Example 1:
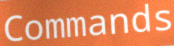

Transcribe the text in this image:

Commands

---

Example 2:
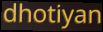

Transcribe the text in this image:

dhotiyan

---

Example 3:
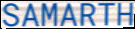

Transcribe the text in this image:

SAMARTH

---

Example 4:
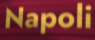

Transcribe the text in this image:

Napoli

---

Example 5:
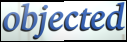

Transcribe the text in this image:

objected